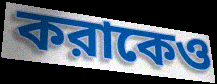
করাকেও